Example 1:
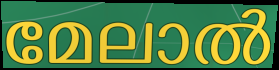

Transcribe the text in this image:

മേലാൽ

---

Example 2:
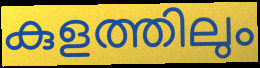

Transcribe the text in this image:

കുളത്തിലും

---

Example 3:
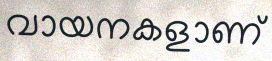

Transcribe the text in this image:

വായനകളാണ്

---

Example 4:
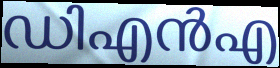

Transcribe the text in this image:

ഡിഎൻഎ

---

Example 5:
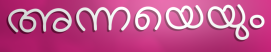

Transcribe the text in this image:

അന്നയെയും